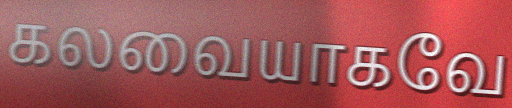
கலவையாகவே